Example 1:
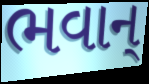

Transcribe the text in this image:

ભવાન્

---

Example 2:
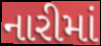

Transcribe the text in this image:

નારીમાં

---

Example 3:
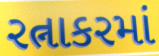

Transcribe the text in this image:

રત્નાકરમાં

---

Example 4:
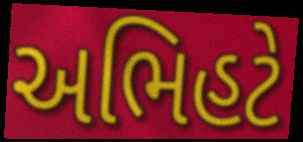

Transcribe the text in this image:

અભિહટે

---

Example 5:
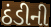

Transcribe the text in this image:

ઠંડીની